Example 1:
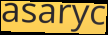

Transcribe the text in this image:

asaryc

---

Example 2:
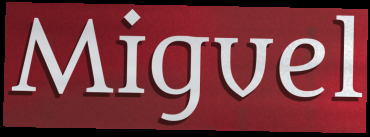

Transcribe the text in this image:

Miguel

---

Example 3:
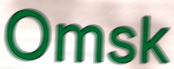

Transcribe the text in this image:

Omsk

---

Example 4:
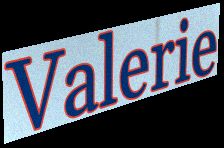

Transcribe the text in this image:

Valerie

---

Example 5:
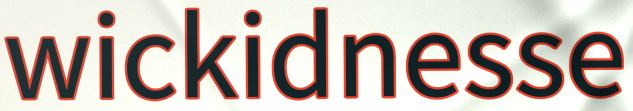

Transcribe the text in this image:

wickidnesse